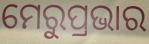
ମେରୁପ୍ରଭାର